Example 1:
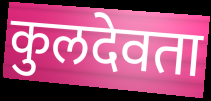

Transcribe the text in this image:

कुलदेवता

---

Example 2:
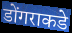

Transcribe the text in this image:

डोंगराकडे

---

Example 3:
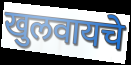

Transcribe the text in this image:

खुलवायचे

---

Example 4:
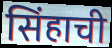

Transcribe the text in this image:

सिंहाची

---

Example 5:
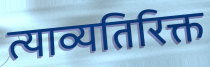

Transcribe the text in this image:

त्याव्यतिरिक्त